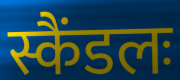
स्कैंडलः